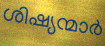
ശിഷ്യന്മാർ